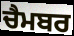
ਚੈਮਬਰ